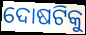
ଦୋଷଟିକୁ